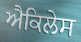
ਐਕਿਲੇਸ